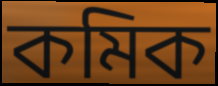
কমিক